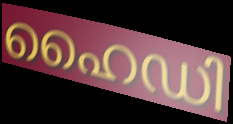
ഹൈഡി